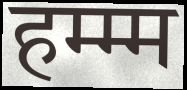
हम्म्म